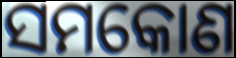
ସମକୋଣ